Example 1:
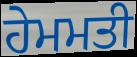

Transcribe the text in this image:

ਹੇਮਮਤੀ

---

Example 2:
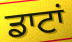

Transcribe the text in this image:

ਡਾਟਾਂ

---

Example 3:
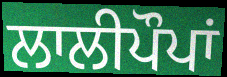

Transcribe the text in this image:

ਲਾਲੀਪੌਪਾਂ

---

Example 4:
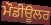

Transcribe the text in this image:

ਮੌਡੀਊਲਰ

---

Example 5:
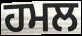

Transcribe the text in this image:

ਹਮਲ